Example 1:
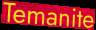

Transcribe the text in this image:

Temanite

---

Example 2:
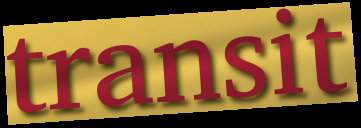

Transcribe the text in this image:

transit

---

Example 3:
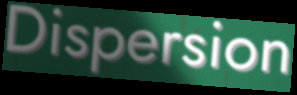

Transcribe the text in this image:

Dispersion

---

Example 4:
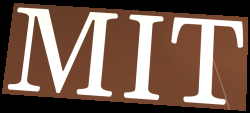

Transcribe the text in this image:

MIT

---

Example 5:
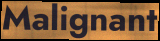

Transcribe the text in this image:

Malignant